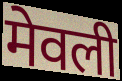
मेवली